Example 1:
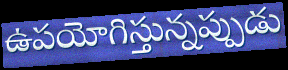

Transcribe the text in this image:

ఉపయోగిస్తున్నప్పుడు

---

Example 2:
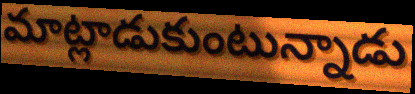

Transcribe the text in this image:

మాట్లాడుకుంటున్నాడు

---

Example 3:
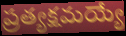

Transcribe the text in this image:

ప్రత్యక్షమయ్యే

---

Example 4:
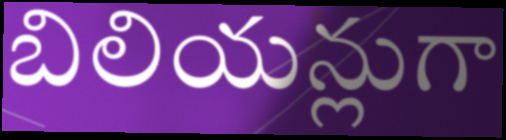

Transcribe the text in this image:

బిలియన్లుగా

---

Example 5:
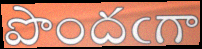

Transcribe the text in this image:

పొందఁగా